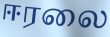
ஈரலை